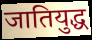
जातियुद्ध